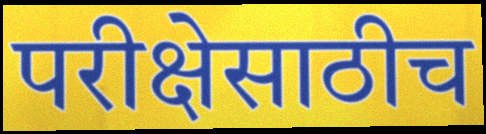
परीक्षेसाठीच